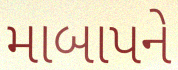
માબાપને